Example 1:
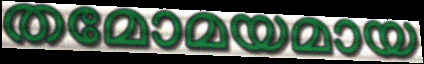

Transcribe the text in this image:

തമോമയമായ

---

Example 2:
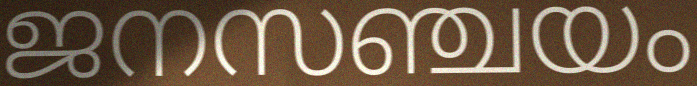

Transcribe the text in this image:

ജനസഞ്ചയം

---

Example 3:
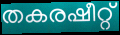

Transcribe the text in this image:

തകരഷീറ്റ്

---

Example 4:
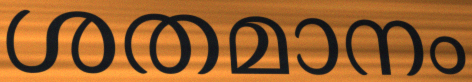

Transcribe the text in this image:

ശതമാനം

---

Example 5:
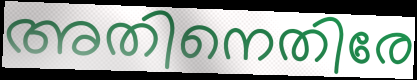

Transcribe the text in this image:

അതിനെതിരേ